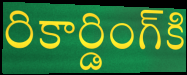
రికార్డింగ్‌కి